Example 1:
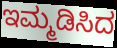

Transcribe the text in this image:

ಇಮ್ಮಡಿಸಿದ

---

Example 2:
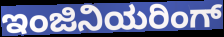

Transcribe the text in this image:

ಇಂಜಿನಿಯರಿಂಗ್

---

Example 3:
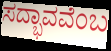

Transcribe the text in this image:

ಸದ್ಭಾವವೆಂಬ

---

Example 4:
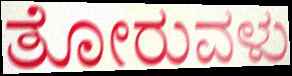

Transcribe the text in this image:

ತೋರುವಳು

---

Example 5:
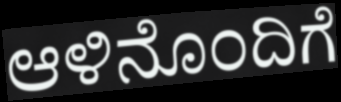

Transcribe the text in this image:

ಆಳಿನೊಂದಿಗೆ